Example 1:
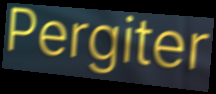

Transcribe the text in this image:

Pergiter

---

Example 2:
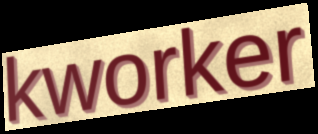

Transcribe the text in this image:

kworker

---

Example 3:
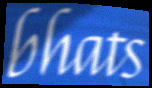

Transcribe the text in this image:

bhats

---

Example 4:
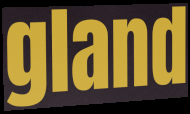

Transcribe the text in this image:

gland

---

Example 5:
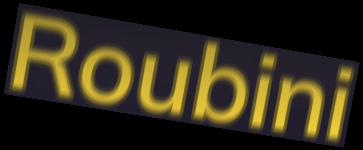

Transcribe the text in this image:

Roubini